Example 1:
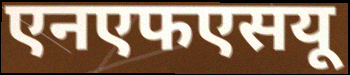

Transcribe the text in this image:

एनएफएसयू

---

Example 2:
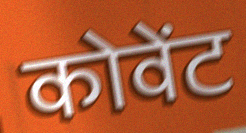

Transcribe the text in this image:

कोवेंट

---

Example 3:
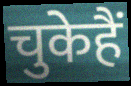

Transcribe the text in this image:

चुकेहैं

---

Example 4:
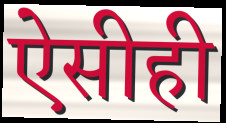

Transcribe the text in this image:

ऐसीही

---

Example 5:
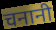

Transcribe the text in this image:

चनानी